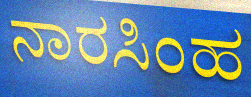
ನಾರಸಿಂಹ